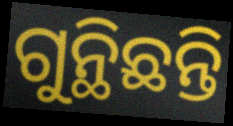
ଗୁନ୍ଥିଛନ୍ତି